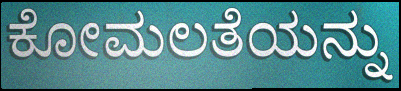
ಕೋಮಲತೆಯನ್ನು